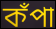
কঁপা